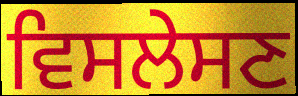
ਵਿਸਲੇਸਣ